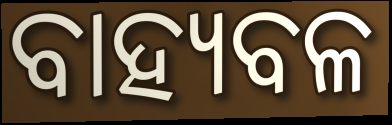
ବାହ୍ୟବଳ